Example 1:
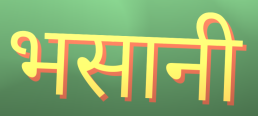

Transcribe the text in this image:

भसानी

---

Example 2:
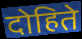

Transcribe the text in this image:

दोहिते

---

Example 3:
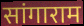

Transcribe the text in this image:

सांगाराम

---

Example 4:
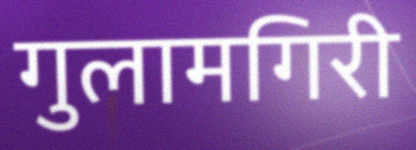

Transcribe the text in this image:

गुलामगिरी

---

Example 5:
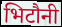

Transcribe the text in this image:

भिटौनी